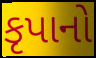
કૃપાનો